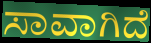
ಸಾವಾಗಿದೆ